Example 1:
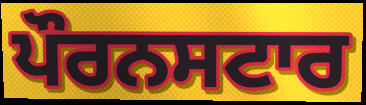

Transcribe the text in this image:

ਪੌਰਨਸਟਾਰ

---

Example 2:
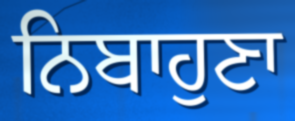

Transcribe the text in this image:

ਨਿਬਾਹੁਣਾ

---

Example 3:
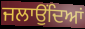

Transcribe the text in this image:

ਜਲਾਉਂਦਿਆਂ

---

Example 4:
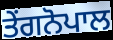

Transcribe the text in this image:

ਤੇਂਗਨੋਪਾਲ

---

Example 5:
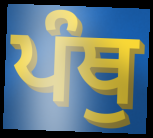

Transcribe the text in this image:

ਪੰਥੁ